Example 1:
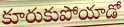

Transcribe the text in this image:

కూరుకుపోయాడో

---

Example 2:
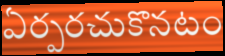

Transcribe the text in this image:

ఏర్పరచుకొనటం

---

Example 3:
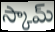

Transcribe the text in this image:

స్కామ్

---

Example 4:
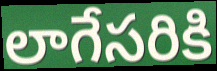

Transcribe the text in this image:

లాగేసరికి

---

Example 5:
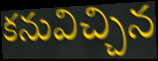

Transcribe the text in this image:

కనువిచ్చిన